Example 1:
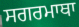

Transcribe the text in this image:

ਸਗਰਮਾਥਾ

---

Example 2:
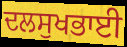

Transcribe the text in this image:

ਦਲਸੁਖਭਾਈ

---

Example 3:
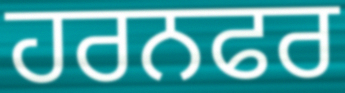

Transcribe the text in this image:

ਹਰਨਫਰ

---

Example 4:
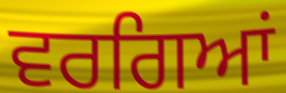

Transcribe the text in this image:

ਵਰਗਿਆਂ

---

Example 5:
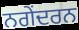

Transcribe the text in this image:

ਨਗੇਂਦਰਨ